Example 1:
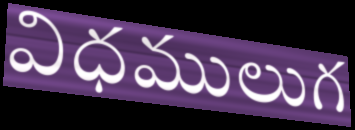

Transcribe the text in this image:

విధములుగ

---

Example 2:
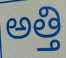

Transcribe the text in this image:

అత్తి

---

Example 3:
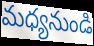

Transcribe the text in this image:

మధ్యనుండి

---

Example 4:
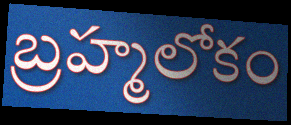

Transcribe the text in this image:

బ్రహ్మలోకం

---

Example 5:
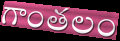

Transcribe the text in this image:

గాంతలం